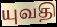
யுவதி